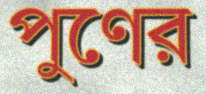
পুণের